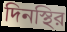
দিনস্থির